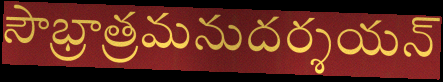
సౌభ్రాత్రమనుదర్శయన్